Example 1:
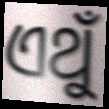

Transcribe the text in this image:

ଏଥୁଁ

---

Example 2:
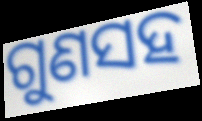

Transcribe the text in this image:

ଗୁଣସହ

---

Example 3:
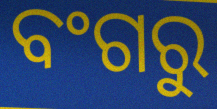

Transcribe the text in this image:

ବଂଗରୁ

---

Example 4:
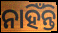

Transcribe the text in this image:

ନାହିଁନ୍ତି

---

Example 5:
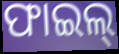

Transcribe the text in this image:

ଫାଇଲ୍